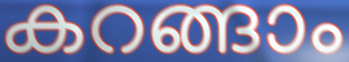
കറങ്ങാം